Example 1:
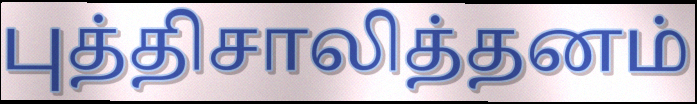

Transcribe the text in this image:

புத்திசாலித்தனம்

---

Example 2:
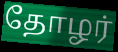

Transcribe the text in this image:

தோழர்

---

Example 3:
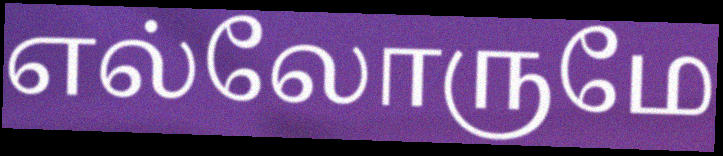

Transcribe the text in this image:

எல்லோருமே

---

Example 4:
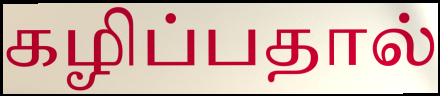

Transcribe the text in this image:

கழிப்பதால்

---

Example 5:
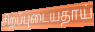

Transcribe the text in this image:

சிறப்புடையதாய்